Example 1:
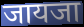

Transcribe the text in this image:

जायजा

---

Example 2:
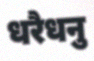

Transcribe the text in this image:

धरैधनु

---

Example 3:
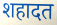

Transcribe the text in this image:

शहादत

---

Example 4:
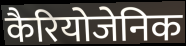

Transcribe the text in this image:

कैरियोजेनिक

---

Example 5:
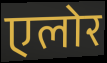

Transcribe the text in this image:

एलोर